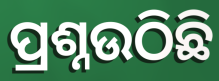
ପ୍ରଶ୍ନଉଠିଛି